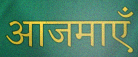
आजमाएँ